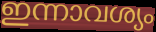
ഇന്നാവശ്യം